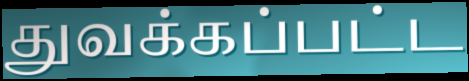
துவக்கப்பட்ட